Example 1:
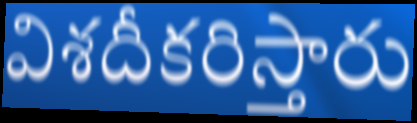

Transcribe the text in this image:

విశదీకరిస్తారు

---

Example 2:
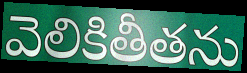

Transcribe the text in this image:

వెలికితీతను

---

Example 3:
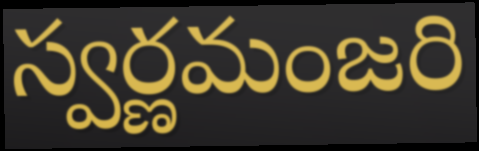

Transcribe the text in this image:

స్వర్ణమంజరి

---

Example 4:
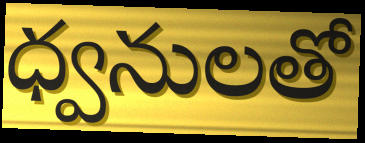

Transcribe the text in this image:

ధ్వనులతో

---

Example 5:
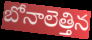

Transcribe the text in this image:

బోనాలెత్తిన